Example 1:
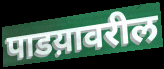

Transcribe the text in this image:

पाडय़ावरील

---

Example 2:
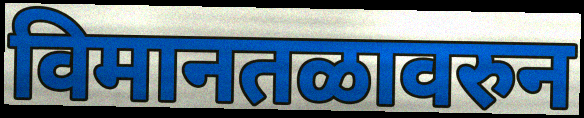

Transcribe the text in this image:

विमानतळावरुन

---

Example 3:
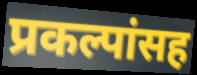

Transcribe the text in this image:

प्रकल्पांसह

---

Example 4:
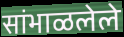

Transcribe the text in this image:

सांभाळलेले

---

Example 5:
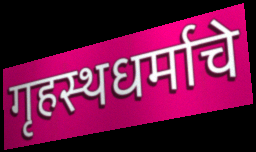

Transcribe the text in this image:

गृहस्थधर्माचे